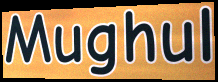
Mughul